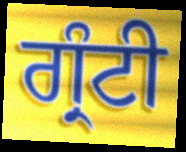
ਗ੍ਰੰਟੀ